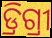
ଡ୍ରିଗ୍ରୀ